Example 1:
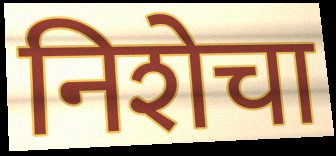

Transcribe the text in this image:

निशेचा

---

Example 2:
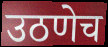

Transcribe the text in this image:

उठणेच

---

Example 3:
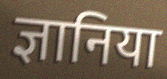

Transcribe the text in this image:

ज्ञानिया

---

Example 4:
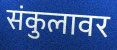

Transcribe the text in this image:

संकुलावर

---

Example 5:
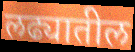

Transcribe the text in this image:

लढ्यातील